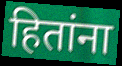
हितांना